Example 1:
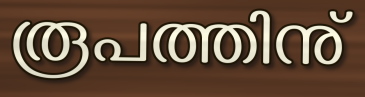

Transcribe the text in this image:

രൂപത്തിനു്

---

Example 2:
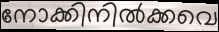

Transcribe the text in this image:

നോക്കിനിൽക്കവെ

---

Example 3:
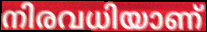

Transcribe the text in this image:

നിരവധിയാണ്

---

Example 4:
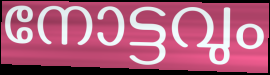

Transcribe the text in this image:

നോട്ടവും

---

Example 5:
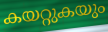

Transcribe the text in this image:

കയറ്റുകയും